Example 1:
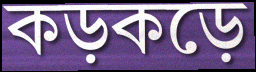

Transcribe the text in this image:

কড়কড়ে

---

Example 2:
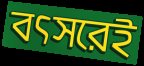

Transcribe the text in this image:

বৎসরেই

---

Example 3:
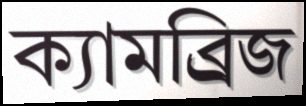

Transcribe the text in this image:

ক্যামব্র্রিজ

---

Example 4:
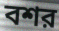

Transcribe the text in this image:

বশর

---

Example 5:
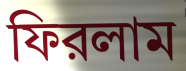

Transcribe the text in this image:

ফিরলাম